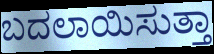
ಬದಲಾಯಿಸುತ್ತಾ